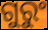
ଗୁରୁଂ